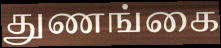
துணங்கை